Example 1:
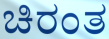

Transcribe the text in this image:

ಚಿರಂತ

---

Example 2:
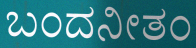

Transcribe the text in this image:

ಬಂದನೀತಂ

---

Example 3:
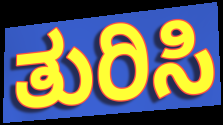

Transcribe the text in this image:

ತುರಿಸಿ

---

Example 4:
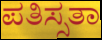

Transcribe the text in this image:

ಪತಿಸ್ಸತಾ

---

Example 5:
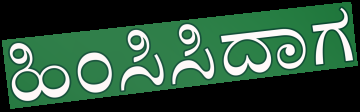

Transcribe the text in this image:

ಹಿಂಸಿಸಿದಾಗ